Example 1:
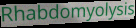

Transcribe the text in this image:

Rhabdomyolysis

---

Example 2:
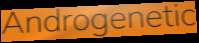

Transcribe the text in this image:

Androgenetic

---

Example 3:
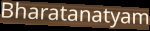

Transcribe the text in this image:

Bharatanatyam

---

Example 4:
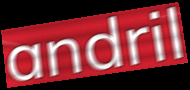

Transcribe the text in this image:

andril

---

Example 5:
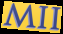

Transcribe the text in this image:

MII